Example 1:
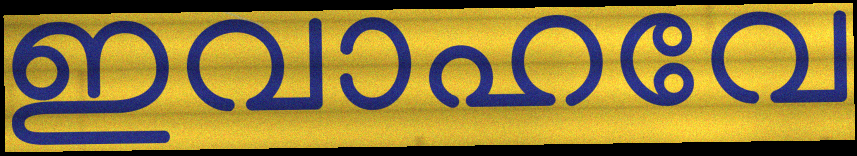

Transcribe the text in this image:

ഇവാഹവേ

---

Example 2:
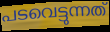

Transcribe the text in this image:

പടവെട്ടുന്നത്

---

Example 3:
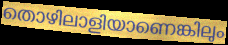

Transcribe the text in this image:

തൊഴിലാളിയാണെങ്കിലും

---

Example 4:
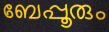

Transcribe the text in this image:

ബേപ്പൂരും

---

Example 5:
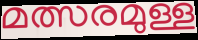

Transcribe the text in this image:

മത്സരമുള്ള